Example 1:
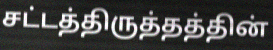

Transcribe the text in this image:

சட்டத்திருத்தத்தின்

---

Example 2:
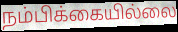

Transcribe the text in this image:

நம்பிக்கையில்லை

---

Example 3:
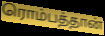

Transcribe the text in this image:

ரொம்பத்தான்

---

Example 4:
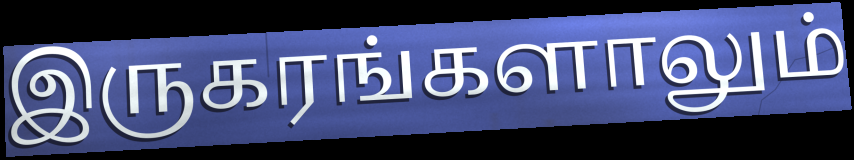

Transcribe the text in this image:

இருகரங்களாலும்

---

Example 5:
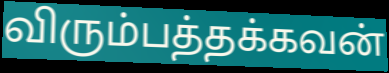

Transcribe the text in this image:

விரும்பத்தக்கவன்